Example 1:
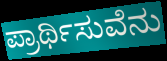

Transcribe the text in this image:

ಪ್ರಾರ್ಥಿಸುವೆನು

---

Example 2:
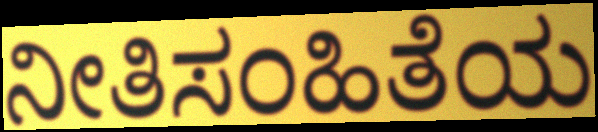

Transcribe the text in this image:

ನೀತಿಸಂಹಿತೆಯ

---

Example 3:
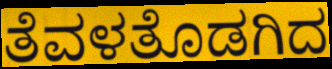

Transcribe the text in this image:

ತೆವಳತೊಡಗಿದ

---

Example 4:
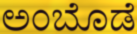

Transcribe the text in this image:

ಅಂಬೊಡೆ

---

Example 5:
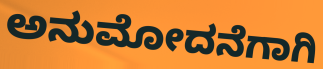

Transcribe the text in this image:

ಅನುಮೋದನೆಗಾಗಿ